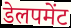
डेलपमेंट